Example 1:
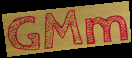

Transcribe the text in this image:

GMm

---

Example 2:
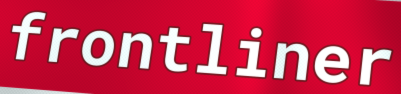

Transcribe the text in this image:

frontliner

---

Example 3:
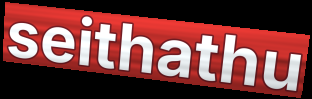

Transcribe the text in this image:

seithathu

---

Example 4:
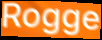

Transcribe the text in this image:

Rogge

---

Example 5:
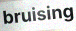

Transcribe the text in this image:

bruising